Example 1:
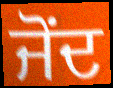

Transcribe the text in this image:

ਜੋਂਦ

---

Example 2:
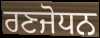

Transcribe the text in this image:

ਰਣਜੋਧਨ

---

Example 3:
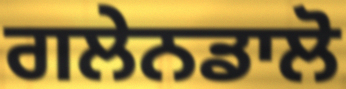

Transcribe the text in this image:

ਗਲੇਨਡਾਲੋ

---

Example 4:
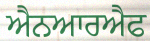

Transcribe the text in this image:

ਐਨਆਰਐਫ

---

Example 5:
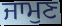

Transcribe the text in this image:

ਜਾਮੁਣ